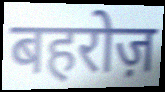
बहरोज़